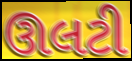
ઊલટી